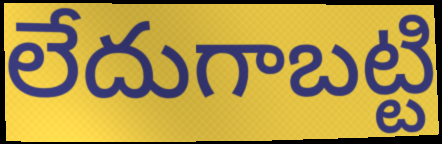
లేదుగాబట్టి